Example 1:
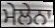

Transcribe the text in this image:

ਮੇਲੇਨਾ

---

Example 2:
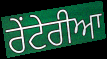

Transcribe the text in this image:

ਰੇਂਟੇਰੀਆ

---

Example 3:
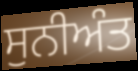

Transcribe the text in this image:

ਸੁਨੀਅੰਤ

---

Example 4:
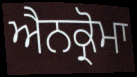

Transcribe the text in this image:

ਐਨਕ੍ਰੋਮਾ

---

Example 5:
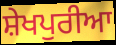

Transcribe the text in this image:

ਸ਼ੇਖਪੁਰੀਆ